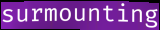
surmounting